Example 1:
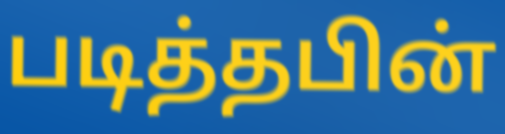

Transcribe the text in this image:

படித்தபின்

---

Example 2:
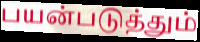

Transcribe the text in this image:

பயன்படுத்தும்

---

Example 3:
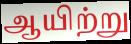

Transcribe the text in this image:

ஆயிற்று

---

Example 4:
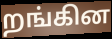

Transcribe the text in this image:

றங்கின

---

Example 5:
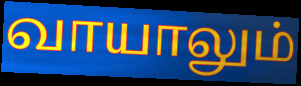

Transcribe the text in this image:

வாயாலும்